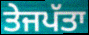
ਤੇਜਪੱਤਾ